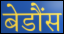
बेडौंस